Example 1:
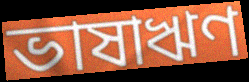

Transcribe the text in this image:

ভাষাঋণ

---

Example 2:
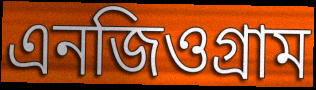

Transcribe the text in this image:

এনজিওগ্রাম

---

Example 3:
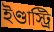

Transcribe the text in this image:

ইণ্ডাস্ট্রি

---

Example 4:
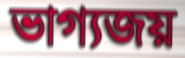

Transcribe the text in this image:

ভাগ্যজয়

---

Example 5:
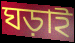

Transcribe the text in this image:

ঘড়াই